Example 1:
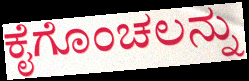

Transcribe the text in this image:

ಕೈಗೊಂಚಲನ್ನು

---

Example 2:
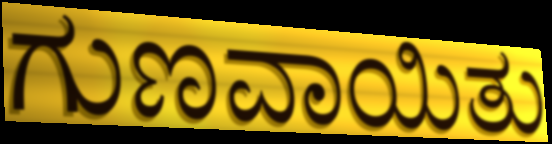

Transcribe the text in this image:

ಗುಣವಾಯಿತು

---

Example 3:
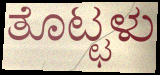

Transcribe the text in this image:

ತೊಟ್ಟಳು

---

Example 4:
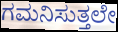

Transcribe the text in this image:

ಗಮನಿಸುತ್ತಲೇ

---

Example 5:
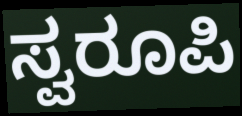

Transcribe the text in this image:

ಸ್ವರೂಪಿ